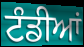
ਟੰਡੀਆਂ